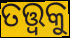
ତତ୍ତ୍ଵକୁ